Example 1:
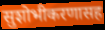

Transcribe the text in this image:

सुशोभीकरणासह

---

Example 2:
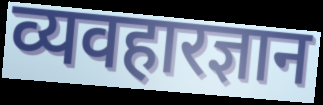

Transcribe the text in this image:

व्यवहारज्ञान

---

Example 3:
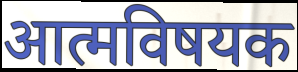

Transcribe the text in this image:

आत्मविषयक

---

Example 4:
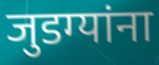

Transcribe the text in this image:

जुडग्यांना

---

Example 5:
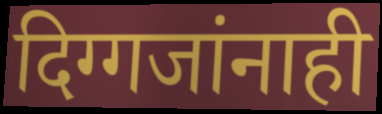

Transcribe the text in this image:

दिग्गजांनाही